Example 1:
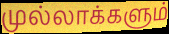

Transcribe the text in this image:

முல்லாக்களும்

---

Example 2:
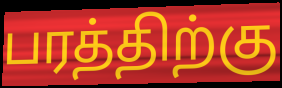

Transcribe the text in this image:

பரத்திற்கு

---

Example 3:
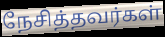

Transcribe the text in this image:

நேசித்தவர்கள்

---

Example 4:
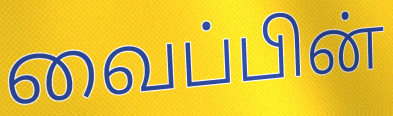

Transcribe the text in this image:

வைப்பின்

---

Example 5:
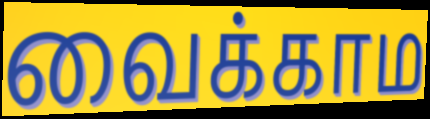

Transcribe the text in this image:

வைக்காம